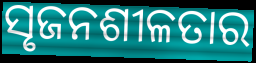
ସୃଜନଶୀଳତାର